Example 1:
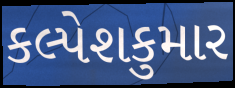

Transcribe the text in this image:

કલ્પેશકુમાર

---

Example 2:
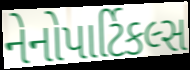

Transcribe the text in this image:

નેનોપાર્ટિકલ્સ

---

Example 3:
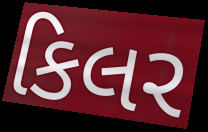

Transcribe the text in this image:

કિલર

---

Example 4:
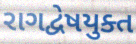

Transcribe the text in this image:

રાગદ્વેષયુક્ત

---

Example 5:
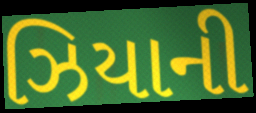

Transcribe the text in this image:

ઝિયાની